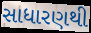
સાધારણથી